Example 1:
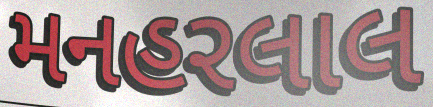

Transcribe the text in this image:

મનહરલાલ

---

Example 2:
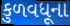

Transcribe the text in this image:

કુળવધૂના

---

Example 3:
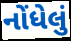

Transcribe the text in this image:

નોંધેલું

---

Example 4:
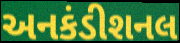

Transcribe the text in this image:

અનકંડીશનલ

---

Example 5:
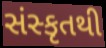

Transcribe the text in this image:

સંસ્કૃતથી